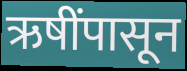
ऋषींपासून